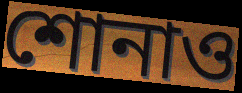
শোনাও